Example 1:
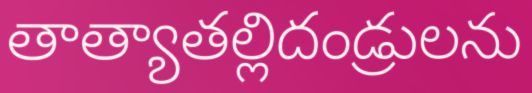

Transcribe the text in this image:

తాత్యాతల్లిదండ్రులను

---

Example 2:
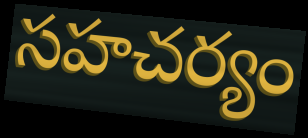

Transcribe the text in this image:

సహచర్యం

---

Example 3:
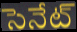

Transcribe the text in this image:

సెనేట్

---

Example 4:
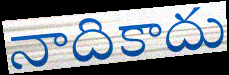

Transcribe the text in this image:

నాదికాదు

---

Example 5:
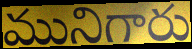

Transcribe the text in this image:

మునిగారు